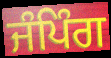
ਜੰਪਿੰਗ